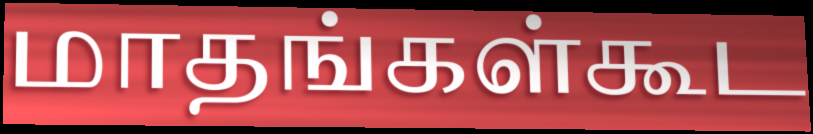
மாதங்கள்கூட